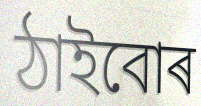
ঠাইবোৰ